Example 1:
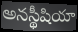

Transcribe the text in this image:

అనస్థీషియా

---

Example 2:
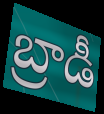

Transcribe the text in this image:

బ్రాడీ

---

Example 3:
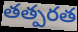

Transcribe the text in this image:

తత్పరత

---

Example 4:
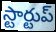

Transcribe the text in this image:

స్టార్టుప్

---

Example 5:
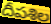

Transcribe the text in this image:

దీపశిల